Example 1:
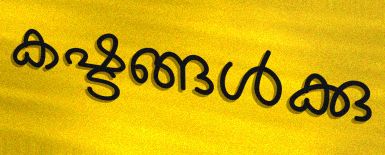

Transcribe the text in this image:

കഷ്ടങ്ങൾക്കു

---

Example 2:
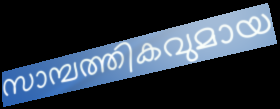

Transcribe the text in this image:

സാമ്പത്തികവുമായ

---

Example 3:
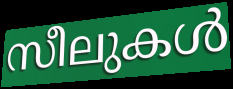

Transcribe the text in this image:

സീലുകൾ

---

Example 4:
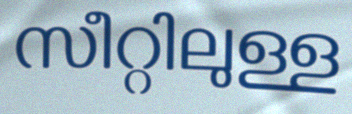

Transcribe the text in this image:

സീറ്റിലുള്ള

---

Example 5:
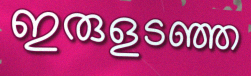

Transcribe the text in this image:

ഇരുളടഞ്ഞ